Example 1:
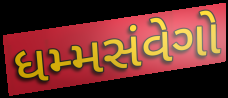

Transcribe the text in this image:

ધમ્મસંવેગો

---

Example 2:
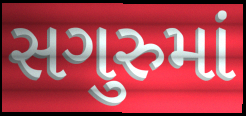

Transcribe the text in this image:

સગુરુમાં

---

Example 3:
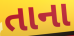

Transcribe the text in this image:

તાના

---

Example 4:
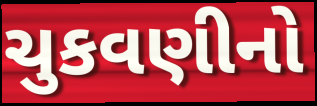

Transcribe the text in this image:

ચુકવણીનો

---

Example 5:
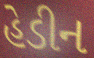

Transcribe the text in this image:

હેડીન